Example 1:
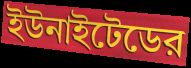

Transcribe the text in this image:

ইউনাইটেডের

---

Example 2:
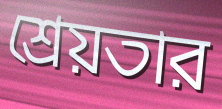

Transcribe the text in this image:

শ্রেয়তার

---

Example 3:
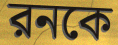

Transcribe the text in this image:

রনকে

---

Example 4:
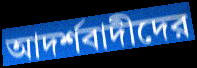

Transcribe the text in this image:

আদর্শবাদীদের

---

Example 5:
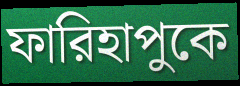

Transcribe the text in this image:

ফারিহাপুকে